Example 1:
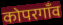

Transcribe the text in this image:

कोपरगाँव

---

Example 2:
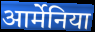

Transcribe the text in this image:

आर्मेनिया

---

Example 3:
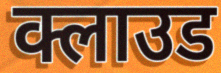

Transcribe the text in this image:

क्लाउड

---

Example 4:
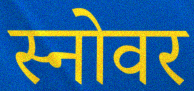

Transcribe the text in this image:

स्नोवर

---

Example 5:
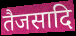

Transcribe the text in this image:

तैजसादि